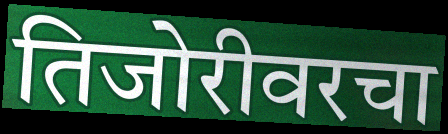
तिजोरीवरचा